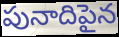
పునాదిపైన